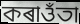
কৰাওঁতা